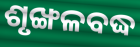
ଶୃଙ୍ଖଳବଦ୍ଧ